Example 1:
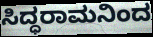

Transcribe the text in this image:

ಸಿದ್ಧರಾಮನಿಂದ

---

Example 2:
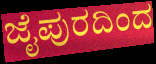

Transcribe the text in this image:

ಜೈಪುರದಿಂದ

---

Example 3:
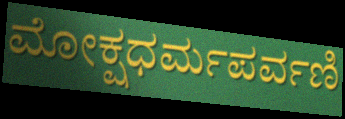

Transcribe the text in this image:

ಮೋಕ್ಷಧರ್ಮಪರ್ವಣಿ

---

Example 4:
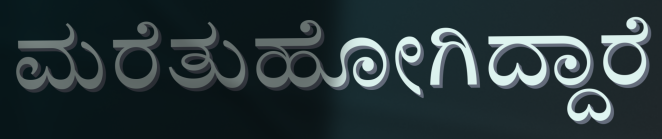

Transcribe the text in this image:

ಮರೆತುಹೋಗಿದ್ದಾರೆ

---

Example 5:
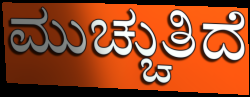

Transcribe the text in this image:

ಮುಚ್ಚುತಿದೆ